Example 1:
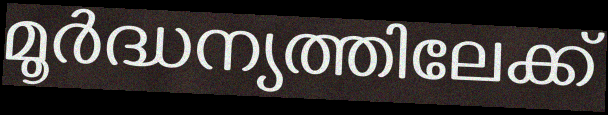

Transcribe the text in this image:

മൂർദ്ധന്യത്തിലേക്ക്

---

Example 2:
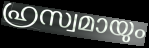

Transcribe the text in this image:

ഹ്രസ്വമായും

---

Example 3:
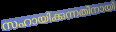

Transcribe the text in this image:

സഹായിക്കുന്നതിനായി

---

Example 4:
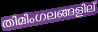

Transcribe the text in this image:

തിമിംഗലങ്ങളില്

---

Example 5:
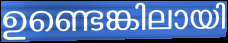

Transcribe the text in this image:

ഉണ്ടെങ്കിലായി